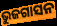
ଭୁଜଗାସନ